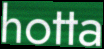
hotta